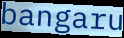
bangaru